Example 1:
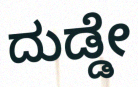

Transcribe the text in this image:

ದುಡ್ಡೇ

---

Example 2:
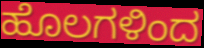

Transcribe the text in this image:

ಹೊಲಗಳಿಂದ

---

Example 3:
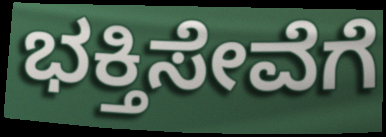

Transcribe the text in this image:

ಭಕ್ತಿಸೇವೆಗೆ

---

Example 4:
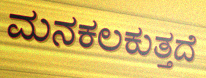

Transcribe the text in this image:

ಮನಕಲಕುತ್ತದೆ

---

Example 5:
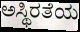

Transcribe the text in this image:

ಅಸ್ಥಿರತೆಯ